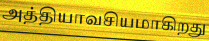
அத்தியாவசியமாகிறது